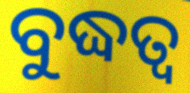
ବୁଦ୍ଧତ୍ଵ